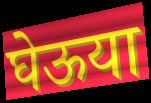
घेऊया